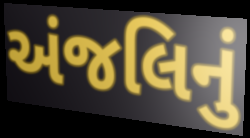
અંજલિનું